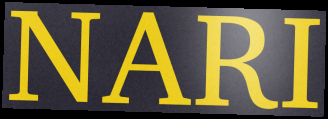
NARI